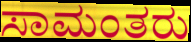
ಸಾಮಂತರು